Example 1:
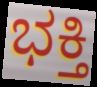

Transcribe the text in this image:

ಭಕ್ತಿ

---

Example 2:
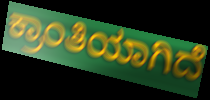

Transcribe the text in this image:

ಕ್ರಾಂತಿಯಾಗಿದೆ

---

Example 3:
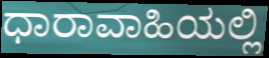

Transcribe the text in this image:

ಧಾರಾವಾಹಿಯಲ್ಲಿ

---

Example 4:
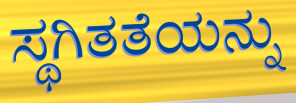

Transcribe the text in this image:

ಸ್ಥಗಿತತೆಯನ್ನು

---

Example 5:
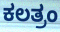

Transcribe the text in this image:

ಕಲತ್ರಂ